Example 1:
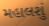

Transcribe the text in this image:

મહાલશું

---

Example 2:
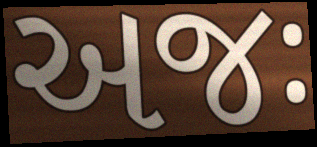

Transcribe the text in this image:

અજઃ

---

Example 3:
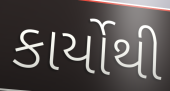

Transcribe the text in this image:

કાર્યોથી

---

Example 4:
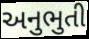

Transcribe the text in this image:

અનુભુતી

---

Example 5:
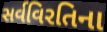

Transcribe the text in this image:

સર્વવિરતિના